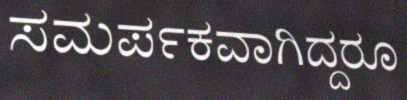
ಸಮರ್ಪಕವಾಗಿದ್ದರೂ